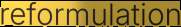
reformulation